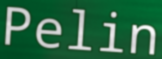
Pelin